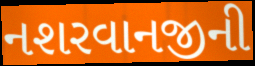
નશરવાનજીની